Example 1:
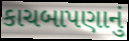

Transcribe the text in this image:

કાચબાપણાનું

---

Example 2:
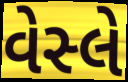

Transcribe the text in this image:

વેસ્લે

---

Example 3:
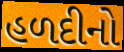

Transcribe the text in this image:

હળદીનો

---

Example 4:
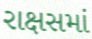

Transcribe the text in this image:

રાક્ષસમાં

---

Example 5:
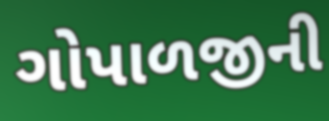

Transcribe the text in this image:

ગોપાળજીની